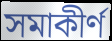
সমাকীর্ণ